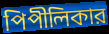
পিপীলিকার